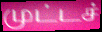
முட்டச்